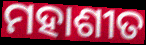
ମହାଶୀତ